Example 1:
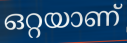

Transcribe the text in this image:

ഒറ്റയാണ്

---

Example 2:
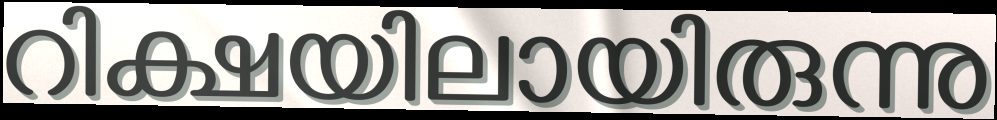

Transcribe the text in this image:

റിക്ഷയിലായിരുന്നു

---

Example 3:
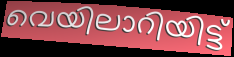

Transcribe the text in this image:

വെയിലാറിയിട്ട്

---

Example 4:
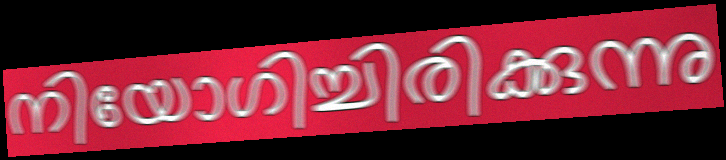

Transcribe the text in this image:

നിയോഗിച്ചിരിക്കുന്നു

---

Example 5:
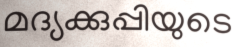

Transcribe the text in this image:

മദ്യക്കുപ്പിയുടെ